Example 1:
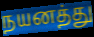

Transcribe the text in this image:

நயனத்து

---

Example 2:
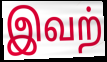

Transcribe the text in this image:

இவற்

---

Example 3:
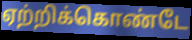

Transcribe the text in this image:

ஏற்றிக்கொண்டே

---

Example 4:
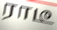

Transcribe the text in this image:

ராடீ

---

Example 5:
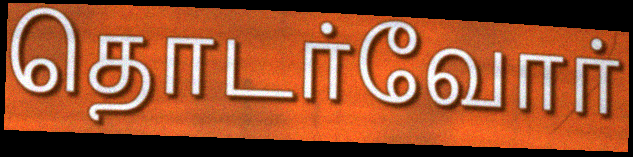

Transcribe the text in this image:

தொடர்வோர்